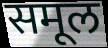
समूल